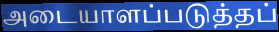
அடையாளப்படுத்தப்